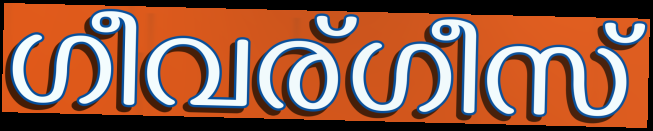
ഗീവര്ഗീസ്